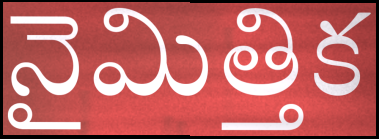
నైమిత్తిక